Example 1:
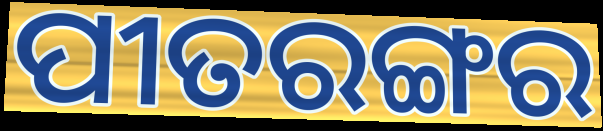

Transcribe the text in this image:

ପୀତରଙ୍ଗର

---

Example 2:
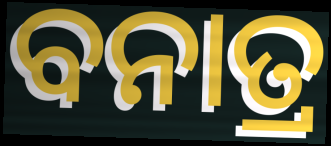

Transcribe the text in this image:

ବନାତ୍ର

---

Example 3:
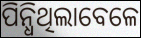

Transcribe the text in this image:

ପିନ୍ଧିଥିଲାବେଳେ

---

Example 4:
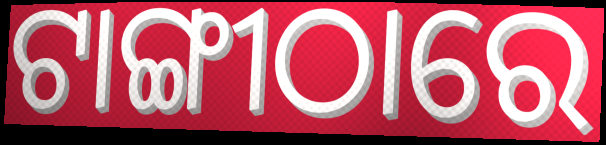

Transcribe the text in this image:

ଟାଙ୍ଗୀଠାରେ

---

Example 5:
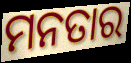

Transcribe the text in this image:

ମନତାର